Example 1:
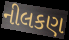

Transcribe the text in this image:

નીલકણ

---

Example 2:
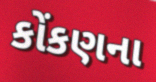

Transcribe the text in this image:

કોંકણના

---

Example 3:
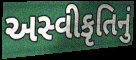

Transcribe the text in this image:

અસ્વીકૃતિનું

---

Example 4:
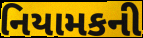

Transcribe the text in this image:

નિયામકની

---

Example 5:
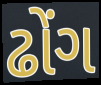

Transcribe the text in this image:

ઢોંગ